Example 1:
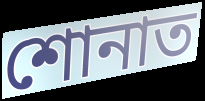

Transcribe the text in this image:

শোনাত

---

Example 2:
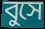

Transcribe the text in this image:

বুসে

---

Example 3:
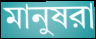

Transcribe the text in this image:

মানুষরা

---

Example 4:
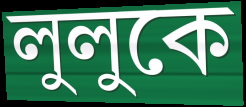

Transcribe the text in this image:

লুলুকে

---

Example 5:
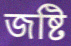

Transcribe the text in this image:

জষ্টি